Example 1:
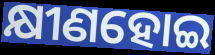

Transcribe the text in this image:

କ୍ଷୀଣହୋଇ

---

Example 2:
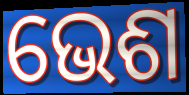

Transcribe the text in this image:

ଭେଶ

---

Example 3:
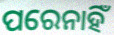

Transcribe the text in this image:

ପରେନାହିଁ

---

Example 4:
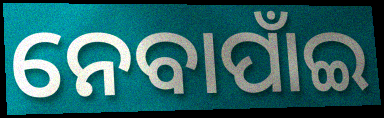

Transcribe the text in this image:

ନେବାପାଁଇ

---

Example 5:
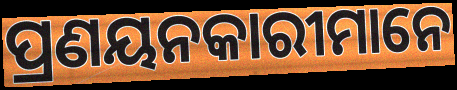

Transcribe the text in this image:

ପ୍ରଣୟନକାରୀମାନେ